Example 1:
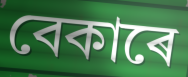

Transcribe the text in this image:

বেকাৰে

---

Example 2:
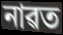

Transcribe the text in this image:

নাৱত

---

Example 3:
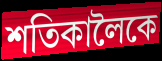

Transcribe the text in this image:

শতিকালৈকে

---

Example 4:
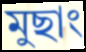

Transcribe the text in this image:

মুছাং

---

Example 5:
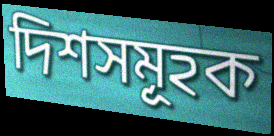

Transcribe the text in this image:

দিশসমূহক